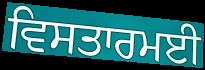
ਵਿਸਤਾਰਮਈ